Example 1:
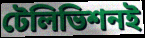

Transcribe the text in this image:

টেলিভিশনই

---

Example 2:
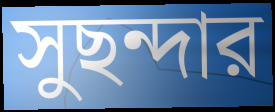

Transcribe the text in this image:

সুছন্দার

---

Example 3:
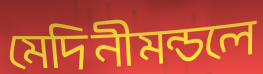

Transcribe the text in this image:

মেদিনীমন্ডলে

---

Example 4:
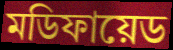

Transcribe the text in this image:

মডিফায়েড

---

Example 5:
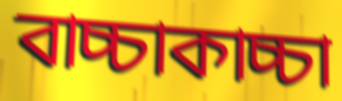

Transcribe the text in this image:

বাচ্চাকাচ্চা